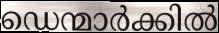
ഡെന്മാർക്കിൽ